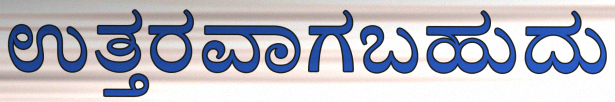
ಉತ್ತರವಾಗಬಹುದು